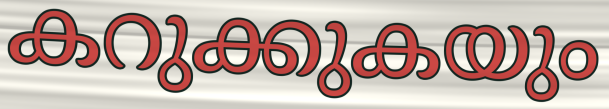
കറുക്കുകയും